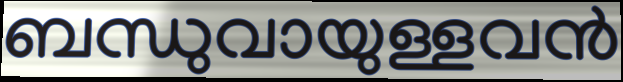
ബന്ധുവായുള്ളവൻ